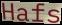
Hafs